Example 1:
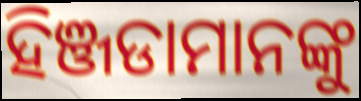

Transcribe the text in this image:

ହିଞ୍ଜଡାମାନଙ୍କୁ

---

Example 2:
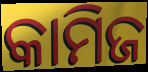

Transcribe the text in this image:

କାମିଜ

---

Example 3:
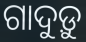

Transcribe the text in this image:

ଗାଦୁଡ଼ୁ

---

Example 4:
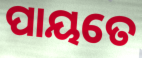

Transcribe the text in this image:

ପାୟତେ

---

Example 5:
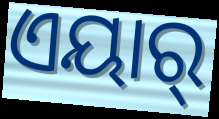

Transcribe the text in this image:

ଏୟାର୍